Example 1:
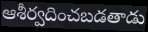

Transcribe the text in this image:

ఆశీర్వదించబడతాడు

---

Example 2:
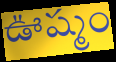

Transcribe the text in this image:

ఊష్మం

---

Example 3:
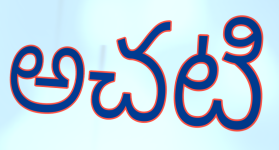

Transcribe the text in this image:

అచటి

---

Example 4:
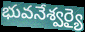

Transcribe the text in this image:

భువనేశ్వర్యై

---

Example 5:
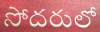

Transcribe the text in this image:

సోదరులో